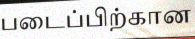
படைப்பிற்கான